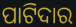
ପାଟିଦାର